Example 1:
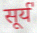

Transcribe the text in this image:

सूर्य॑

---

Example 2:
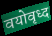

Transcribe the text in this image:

वयोवृध्द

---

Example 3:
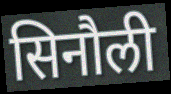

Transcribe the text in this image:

सिनौली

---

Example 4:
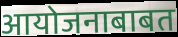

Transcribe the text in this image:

आयोजनाबाबत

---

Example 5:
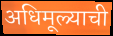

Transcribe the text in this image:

अधिमूल्याची